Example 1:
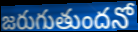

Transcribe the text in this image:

జరుగుతుందనో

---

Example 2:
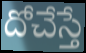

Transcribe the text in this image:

దోచేస్తే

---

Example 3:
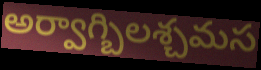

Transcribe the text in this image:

అర్వాగ్బిలశ్చమస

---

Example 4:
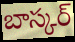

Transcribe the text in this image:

బాస్కర్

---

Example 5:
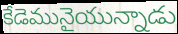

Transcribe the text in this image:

కేడెమునైయున్నాడు